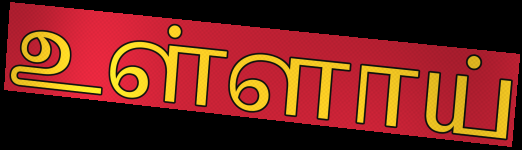
உள்ளாய்